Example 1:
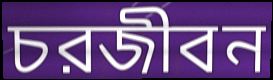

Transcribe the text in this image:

চরজীবন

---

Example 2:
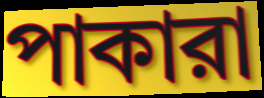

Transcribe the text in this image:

পাকারা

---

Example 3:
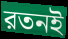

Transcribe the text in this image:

রতনই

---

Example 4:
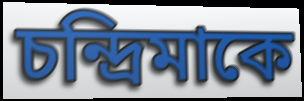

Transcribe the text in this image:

চন্দ্রিমাকে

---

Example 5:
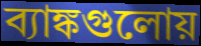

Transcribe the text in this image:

ব্যাঙ্কগুলোয়